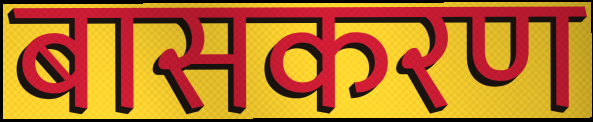
बासकरण